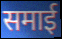
समाई